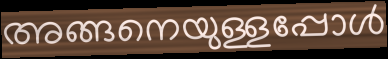
അങ്ങനെയുള്ളപ്പോൾ